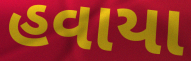
હવાયા